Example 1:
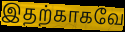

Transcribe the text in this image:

இதற்காகவே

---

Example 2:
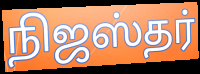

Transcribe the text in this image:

நிஜஸ்தர்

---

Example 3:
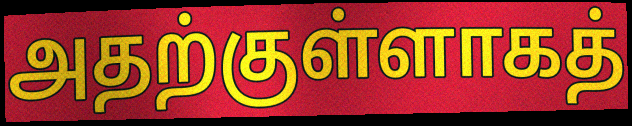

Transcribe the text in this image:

அதற்குள்ளாகத்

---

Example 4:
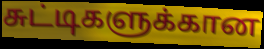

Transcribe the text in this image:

சுட்டிகளுக்கான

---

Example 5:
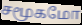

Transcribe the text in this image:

சமூகமோ